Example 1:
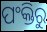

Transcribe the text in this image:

ପଂକ୍ତିରୁ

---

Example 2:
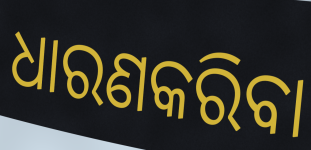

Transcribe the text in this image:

ଧାରଣକରିବା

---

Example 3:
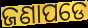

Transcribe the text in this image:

ଜଣାପଡେ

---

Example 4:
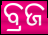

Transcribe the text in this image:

ବ୍ରଜ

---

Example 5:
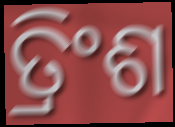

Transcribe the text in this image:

ତ୍ରିଂଶ